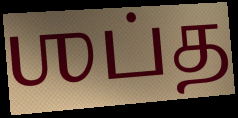
ஶப்த